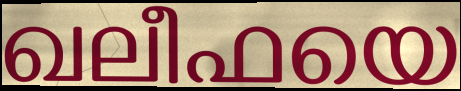
ഖലീഫയെ